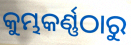
କୁମ୍ଭକର୍ଣ୍ଣଠାରୁ